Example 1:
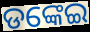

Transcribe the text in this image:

ଡଙ୍କେଇ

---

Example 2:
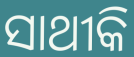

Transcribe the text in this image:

ସାଥୀକି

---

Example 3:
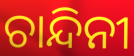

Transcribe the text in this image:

ଚାନ୍ଦିନୀ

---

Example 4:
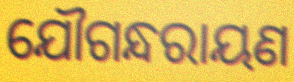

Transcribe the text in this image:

ଯୌଗନ୍ଧରାୟଣ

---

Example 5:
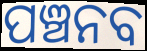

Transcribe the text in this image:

ପଞ୍ଚନବ